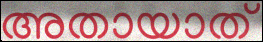
അതായാത്